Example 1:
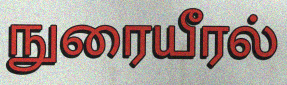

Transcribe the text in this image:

நுரையீரல்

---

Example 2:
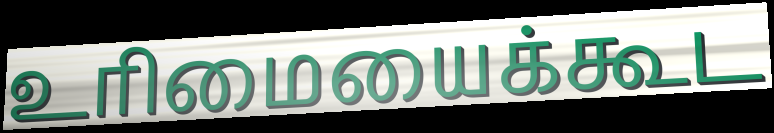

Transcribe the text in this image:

உரிமையைக்கூட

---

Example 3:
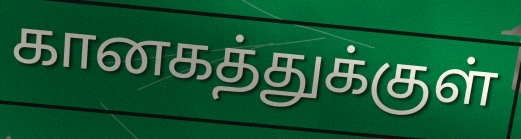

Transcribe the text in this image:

கானகத்துக்குள்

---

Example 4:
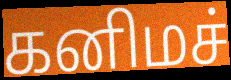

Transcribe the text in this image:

கனிமச்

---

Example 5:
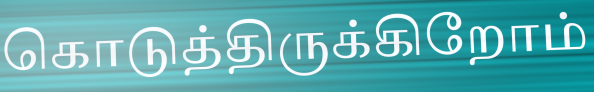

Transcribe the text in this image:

கொடுத்திருக்கிறோம்